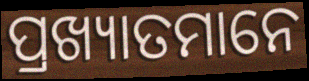
ପ୍ରଖ୍ୟାତମାନେ